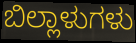
ಬಿಲ್ಲಾಳುಗಳು